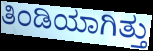
ತಿಂಡಿಯಾಗಿತ್ತು